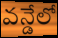
వన్డేలో